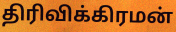
திரிவிக்கிரமன்